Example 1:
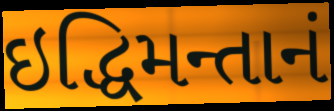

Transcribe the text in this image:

ઇદ્ધિમન્તાનં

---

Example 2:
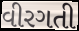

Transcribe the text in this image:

વીરગતી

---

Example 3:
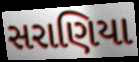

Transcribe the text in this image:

સરાણિયા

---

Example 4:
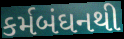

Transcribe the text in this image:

કર્મબંઘનથી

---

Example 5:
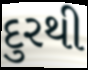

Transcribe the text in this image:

દુરથી